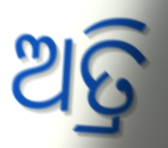
ଅତ୍ରି